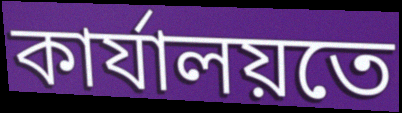
কাৰ্যালয়তে